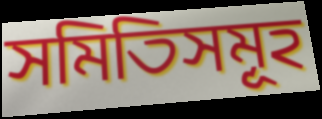
সমিতিসমূহ